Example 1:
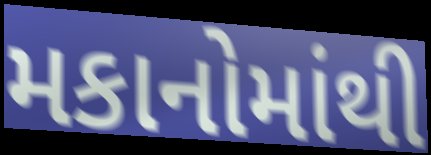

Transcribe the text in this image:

મકાનોમાંથી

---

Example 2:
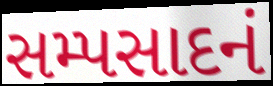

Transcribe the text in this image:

સમ્પસાદનં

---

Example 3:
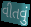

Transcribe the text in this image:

વીતવું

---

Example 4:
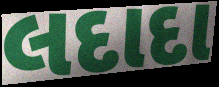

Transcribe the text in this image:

લદાદા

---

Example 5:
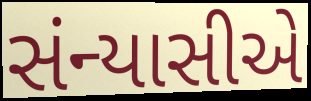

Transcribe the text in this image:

સંન્યાસીએ